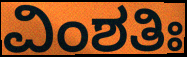
ವಿಂಶತಿಃ